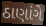
ઠાણાંગે